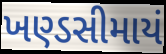
ખણ્ડસીમાયં